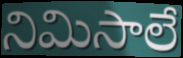
నిమిసాలే